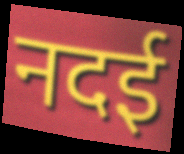
नदई